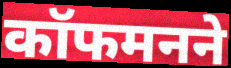
कॉफमनने